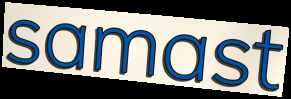
samast